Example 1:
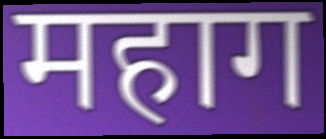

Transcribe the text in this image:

महाग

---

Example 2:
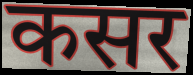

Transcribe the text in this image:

कसर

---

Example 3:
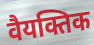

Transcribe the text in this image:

वैयक्तिक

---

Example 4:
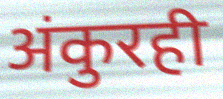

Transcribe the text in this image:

अंकुरही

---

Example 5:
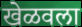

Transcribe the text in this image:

खेळवला